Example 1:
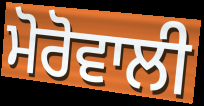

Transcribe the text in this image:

ਮੋਰੋਵਾਲੀ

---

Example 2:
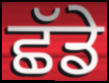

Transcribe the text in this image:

ਛੱਡੇ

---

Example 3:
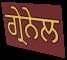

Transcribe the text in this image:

ਗ੍ਰੇਨੇਲ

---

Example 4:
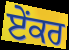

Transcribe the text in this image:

ਏੰਕਰ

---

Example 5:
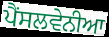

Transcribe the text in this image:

ਪੈਂਸਲਵੇਨੀਆ